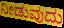
ನೀಡುವುದು